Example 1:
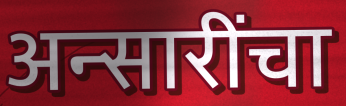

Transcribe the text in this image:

अन्सारींचा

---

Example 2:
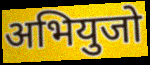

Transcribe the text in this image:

अभियुजो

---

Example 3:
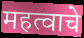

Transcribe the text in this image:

महत्वाचे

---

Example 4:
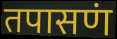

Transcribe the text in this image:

तपासणं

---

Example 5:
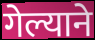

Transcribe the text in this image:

गेल्‍याने